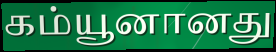
கம்யூனானது